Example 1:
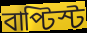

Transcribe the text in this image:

বাপ্টিস্ট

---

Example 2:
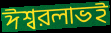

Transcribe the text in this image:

ঈশ্বরলাভই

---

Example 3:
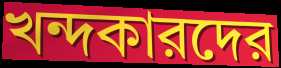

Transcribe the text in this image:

খন্দকারদের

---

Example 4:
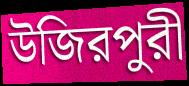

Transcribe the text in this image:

উজিরপুরী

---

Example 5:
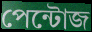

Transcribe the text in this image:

পেন্টোজ